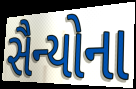
સૈન્યોના